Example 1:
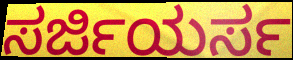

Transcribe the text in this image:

ಸರ್ಜಿಯರ್ಸ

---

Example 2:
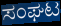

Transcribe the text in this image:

ಸಂಘಟ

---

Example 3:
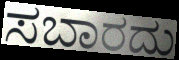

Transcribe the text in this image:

ಸಬಾರದು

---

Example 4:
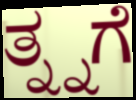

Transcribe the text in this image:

ತ್ನ್ನಗೆ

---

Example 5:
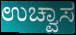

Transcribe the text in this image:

ಉಚ್ವಾಸ